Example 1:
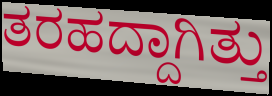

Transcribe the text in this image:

ತರಹದ್ದಾಗಿತ್ತು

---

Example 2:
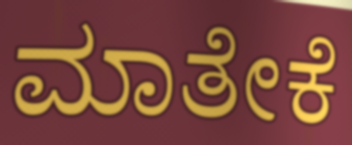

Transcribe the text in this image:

ಮಾತೇಕೆ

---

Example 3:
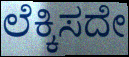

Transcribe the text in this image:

ಲೆಕ್ಕಿಸದೇ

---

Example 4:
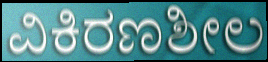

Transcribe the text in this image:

ವಿಕಿರಣಶೀಲ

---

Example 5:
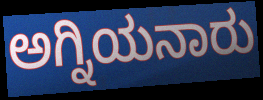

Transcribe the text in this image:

ಅಗ್ನಿಯನಾರು